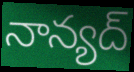
నాన్యద్